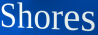
Shores